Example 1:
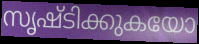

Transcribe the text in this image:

സൃഷ്ടിക്കുകയോ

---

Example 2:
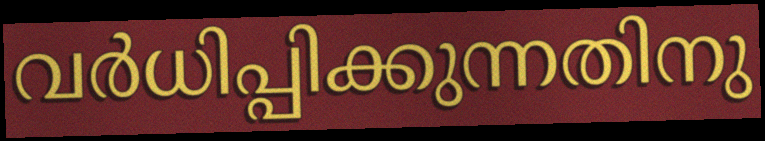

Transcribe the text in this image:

വർധിപ്പിക്കുന്നതിനു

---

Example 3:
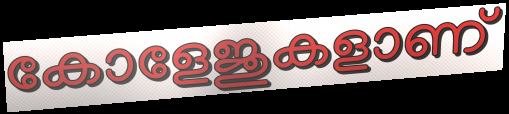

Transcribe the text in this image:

കോളേജുകളാണ്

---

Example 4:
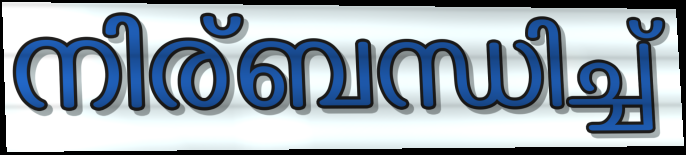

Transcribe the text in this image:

നിര്ബന്ധിച്ച്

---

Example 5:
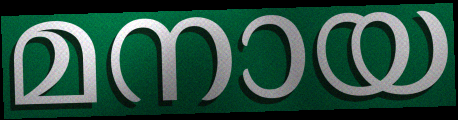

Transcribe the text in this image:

മനായ